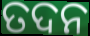
ତଦନ